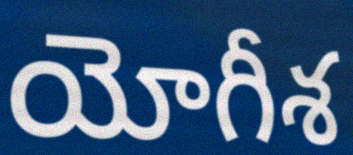
యోగీశ